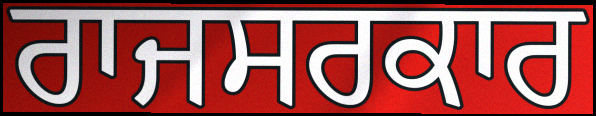
ਰਾਜਸਰਕਾਰ